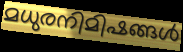
മധുരനിമിഷങ്ങൾ